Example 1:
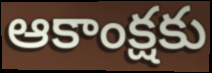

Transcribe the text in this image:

ఆకాంక్షకు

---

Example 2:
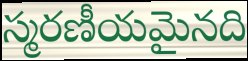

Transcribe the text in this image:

స్మరణీయమైనది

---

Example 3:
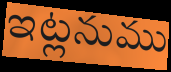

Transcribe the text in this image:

ఇట్లనుము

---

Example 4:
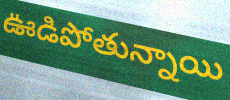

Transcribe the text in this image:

ఊడిపోతున్నాయి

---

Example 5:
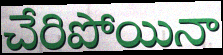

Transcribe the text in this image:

చేరిపోయినా